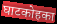
घाटकोहका